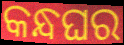
କନ୍ଧଘର